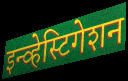
इन्व्हेस्टिगेशन